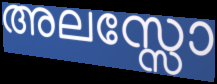
അലസ്സോ